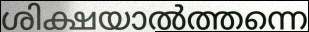
ശിക്ഷയാൽത്തന്നെ